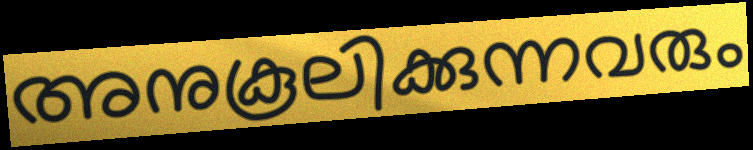
അനുകൂലിക്കുന്നവരും